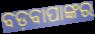
ବଡ଼ବାପାଙ୍କର